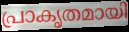
പ്രാകൃതമായി